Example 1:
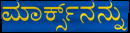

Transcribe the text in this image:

ಮಾರ್ಕ್ಸ್‌ನನ್ನು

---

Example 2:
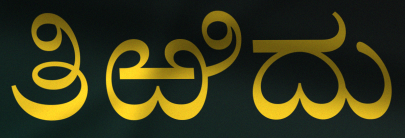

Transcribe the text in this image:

ತಿಱಿದು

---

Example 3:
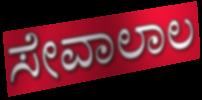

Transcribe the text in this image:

ಸೇವಾಲಾಲ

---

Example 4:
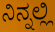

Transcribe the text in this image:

ನಿನ್ನಲ್ಲಿ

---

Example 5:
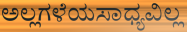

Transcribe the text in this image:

ಅಲ್ಲಗಳೆಯಸಾಧ್ಯವಿಲ್ಲ